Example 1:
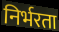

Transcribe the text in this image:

निर्भरता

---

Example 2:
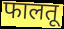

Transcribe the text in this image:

फालतू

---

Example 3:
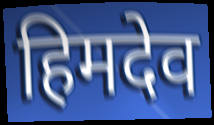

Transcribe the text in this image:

हिमदेव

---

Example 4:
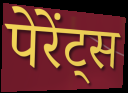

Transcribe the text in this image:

पेरेंट्स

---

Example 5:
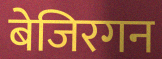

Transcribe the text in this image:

बेजिरगन